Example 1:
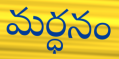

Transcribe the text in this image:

మర్ధనం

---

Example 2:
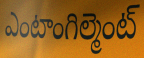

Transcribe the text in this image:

ఎంటాంగిల్మెంట్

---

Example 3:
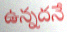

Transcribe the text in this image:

ఉన్నదనే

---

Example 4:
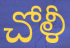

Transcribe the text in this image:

చోళీ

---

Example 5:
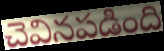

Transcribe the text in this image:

చెవినపడింది